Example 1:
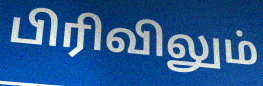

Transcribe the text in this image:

பிரிவிலும்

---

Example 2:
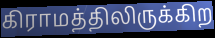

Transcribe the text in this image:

கிராமத்திலிருக்கிற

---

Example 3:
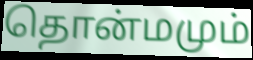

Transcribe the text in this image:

தொன்மமும்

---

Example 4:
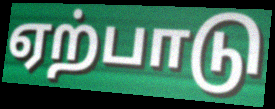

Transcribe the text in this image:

ஏற்பாடு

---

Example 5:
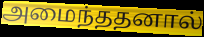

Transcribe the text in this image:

அமைந்ததனால்